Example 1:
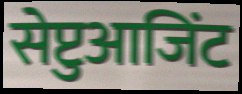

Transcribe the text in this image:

सेप्टुआजिंट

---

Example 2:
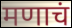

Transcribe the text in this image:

मणाचं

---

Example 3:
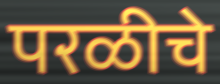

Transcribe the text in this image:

परळीचे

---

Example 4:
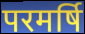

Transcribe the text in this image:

परमर्षि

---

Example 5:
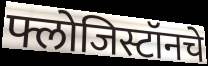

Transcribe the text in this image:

फ्लोजिस्टॉनचे